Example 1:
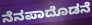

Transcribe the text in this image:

ನೆನಪಾದೊಡನೆ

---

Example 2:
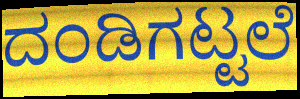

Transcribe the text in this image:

ದಂಡಿಗಟ್ಟಲೆ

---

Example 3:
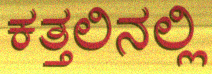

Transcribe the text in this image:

ಕತ್ತಲಿನಲ್ಲಿ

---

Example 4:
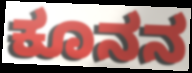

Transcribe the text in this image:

ಕೂನನ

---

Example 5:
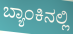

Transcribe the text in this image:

ಬ್ಯಾಂಕಿನಲ್ಲಿ